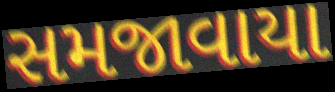
સમજાવાયા